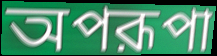
অপরূপা